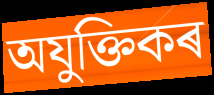
অযুক্তিকৰ